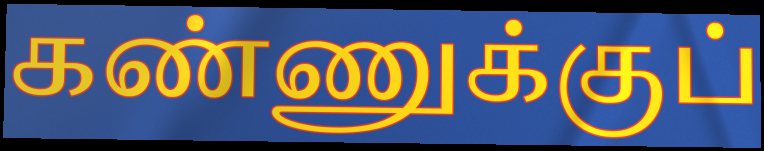
கண்ணுக்குப்